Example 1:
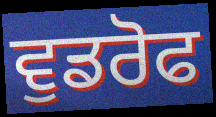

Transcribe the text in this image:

ਵੁਡਰੋਫ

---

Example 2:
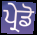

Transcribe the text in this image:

ਪ੍ਰੇਡੋ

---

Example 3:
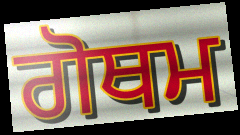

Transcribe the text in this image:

ਗੋਥਮ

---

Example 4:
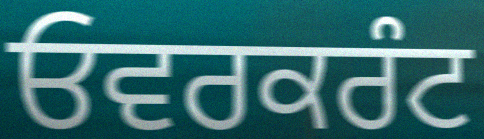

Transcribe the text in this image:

ਓਵਰਕਰੰਟ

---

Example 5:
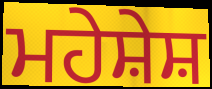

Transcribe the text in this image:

ਮਹੇਸ਼ੇਸ਼